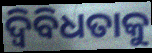
ଦ୍ୱିବିଧତାକୁ